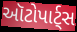
ઑટોપાર્ટ્સ